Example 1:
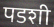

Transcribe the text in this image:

पडशी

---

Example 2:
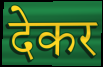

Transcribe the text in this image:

देकर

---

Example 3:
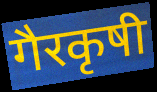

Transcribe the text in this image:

गैरकृषी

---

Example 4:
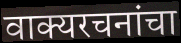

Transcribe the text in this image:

वाक्यरचनांचा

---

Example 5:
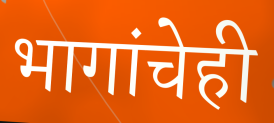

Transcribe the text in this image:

भागांचेही